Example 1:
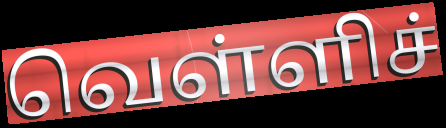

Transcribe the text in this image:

வெள்ளிச்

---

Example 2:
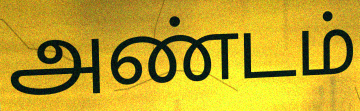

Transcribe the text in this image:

அண்டம்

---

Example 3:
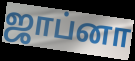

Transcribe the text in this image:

ஜாப்னா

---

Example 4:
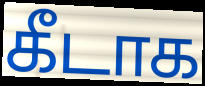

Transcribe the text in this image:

கீடாக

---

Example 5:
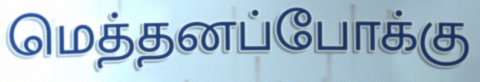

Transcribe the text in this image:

மெத்தனப்போக்கு